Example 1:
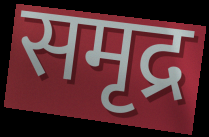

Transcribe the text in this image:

समृद्र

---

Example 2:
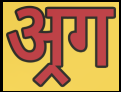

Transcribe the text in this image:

अ्रग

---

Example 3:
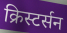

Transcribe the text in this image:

क्रिस्टर्सन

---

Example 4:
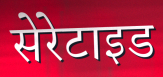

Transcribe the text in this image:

सेरेटाइड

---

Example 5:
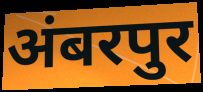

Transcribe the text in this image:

अंबरपुर